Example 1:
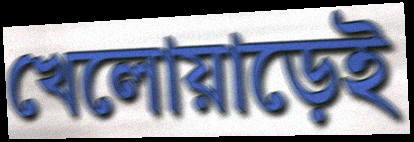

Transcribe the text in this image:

খেলোয়াড়েই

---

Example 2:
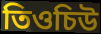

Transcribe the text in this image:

তিওচিউ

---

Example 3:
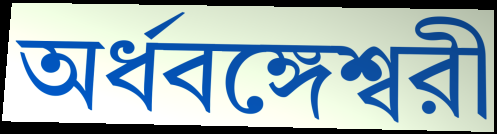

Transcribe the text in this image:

অর্ধবঙ্গেশ্বরী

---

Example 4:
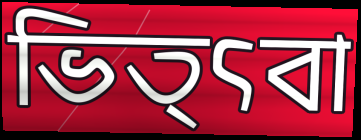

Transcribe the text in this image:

ভিত্ৎবা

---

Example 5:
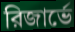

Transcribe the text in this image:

রিজার্ভে